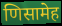
णिसामेह